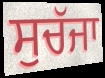
ਸੁਚੱਜਾ